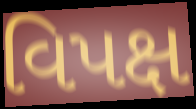
વિપક્ષ